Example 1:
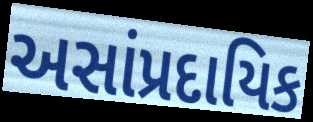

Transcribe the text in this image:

અસાંપ્રદાયિક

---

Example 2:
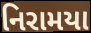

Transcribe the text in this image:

નિરામયા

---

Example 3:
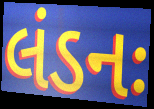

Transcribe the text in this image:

લંડનઃ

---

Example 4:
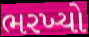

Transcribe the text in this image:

ભરખ્યો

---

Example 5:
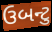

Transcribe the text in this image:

ઉબન્ટુ